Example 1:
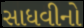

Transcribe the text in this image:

સાધવીનો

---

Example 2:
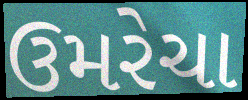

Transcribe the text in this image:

ઉમરેચા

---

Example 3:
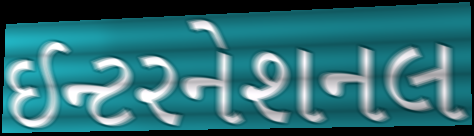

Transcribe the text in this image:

ઈન્ટરનેશનલ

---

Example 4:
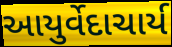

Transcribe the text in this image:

આયુર્વેદાચાર્ય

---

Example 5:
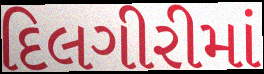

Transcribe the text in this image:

દિલગીરીમાં